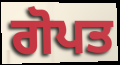
ਗੋਪਤ